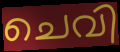
ചെവി